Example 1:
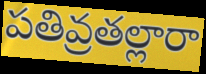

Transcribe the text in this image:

పతివ్రతల్లారా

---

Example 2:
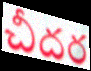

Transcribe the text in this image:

చీదర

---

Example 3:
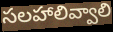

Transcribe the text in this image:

సలహాలివ్వాలి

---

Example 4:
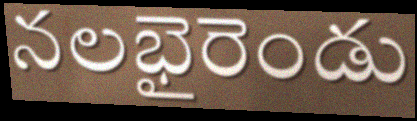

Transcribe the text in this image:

నలభైరెండు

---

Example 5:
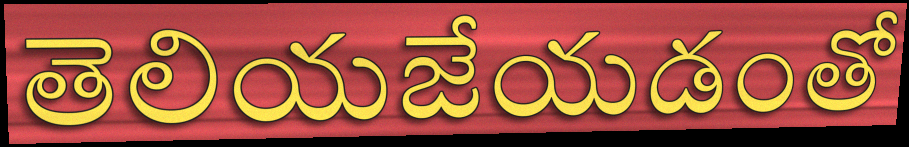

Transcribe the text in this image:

తెలియజేయడంతో